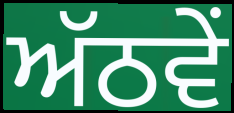
ਅੱਠਵੇਂ